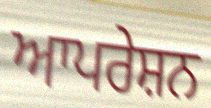
ਆਪਰੇਸ਼ਨ